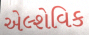
એલ્શેવિક